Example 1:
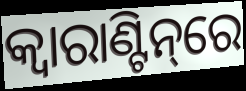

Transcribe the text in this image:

କ୍ବାରାଣ୍ଟିନ୍‌ରେ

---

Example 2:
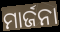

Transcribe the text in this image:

ମାର୍ଜନା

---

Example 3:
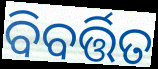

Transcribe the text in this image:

ବିବର୍ତ୍ତିତ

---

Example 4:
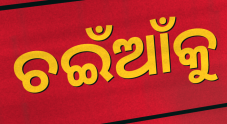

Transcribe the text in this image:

ଚଇଁଆଁକୁ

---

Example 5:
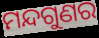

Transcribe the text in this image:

ମନ୍ଦଗୁଣର